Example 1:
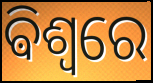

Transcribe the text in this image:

ଵିଶ୍ୱରେ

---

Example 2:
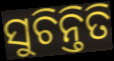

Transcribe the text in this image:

ସୁଚିନ୍ତିତି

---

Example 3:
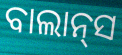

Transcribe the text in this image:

ବାଲାନ୍‌ସ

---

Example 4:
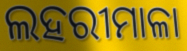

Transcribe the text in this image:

ଲହରୀମାଳା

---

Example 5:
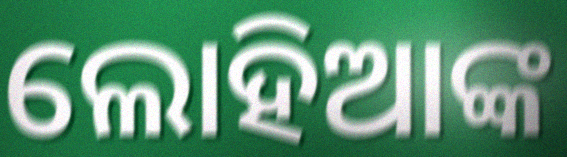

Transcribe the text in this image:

ଲୋହିଆଙ୍କ